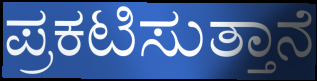
ಪ್ರಕಟಿಸುತ್ತಾನೆ